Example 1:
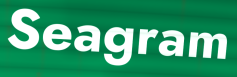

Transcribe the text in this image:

Seagram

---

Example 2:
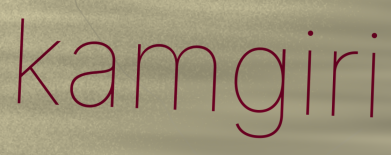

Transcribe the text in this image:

kamgiri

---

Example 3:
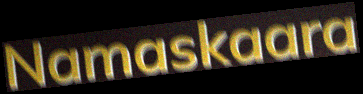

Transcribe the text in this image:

Namaskaara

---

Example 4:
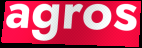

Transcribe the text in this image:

agros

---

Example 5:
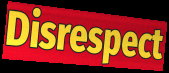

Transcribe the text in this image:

Disrespect